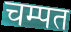
चम्पत